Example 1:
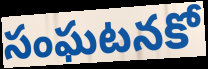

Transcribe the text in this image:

సంఘటనకో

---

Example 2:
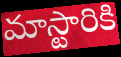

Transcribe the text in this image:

మాస్టారికి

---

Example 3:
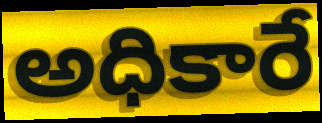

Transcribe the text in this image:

అధికారే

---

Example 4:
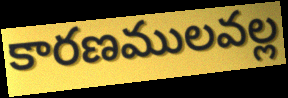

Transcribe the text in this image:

కారణములవల్ల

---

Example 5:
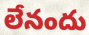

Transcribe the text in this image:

లేనందు